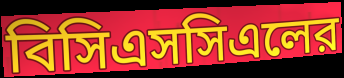
বিসিএসসিএলের